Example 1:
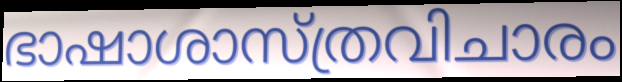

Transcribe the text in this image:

ഭാഷാശാസ്ത്രവിചാരം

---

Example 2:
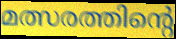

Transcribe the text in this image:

മത്സരത്തിന്റെ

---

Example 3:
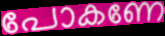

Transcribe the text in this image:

പോകണേ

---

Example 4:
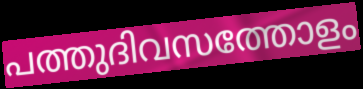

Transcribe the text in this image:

പത്തുദിവസത്തോളം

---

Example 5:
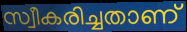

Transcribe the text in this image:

സ്വീകരിച്ചതാണ്